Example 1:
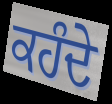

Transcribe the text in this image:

ਕਹੰਦੇ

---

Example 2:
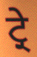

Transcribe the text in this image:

ਟ੍ਰੇ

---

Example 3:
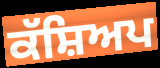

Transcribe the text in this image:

ਕੱਸ਼ਿਅਪ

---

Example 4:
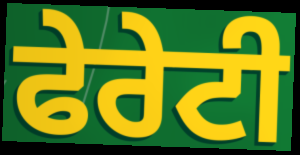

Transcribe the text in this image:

ਫੇਰੇਟੀ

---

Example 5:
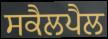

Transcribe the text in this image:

ਸਕੈਲਪੈਲ